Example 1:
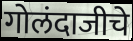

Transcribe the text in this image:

गोलंदाजीचे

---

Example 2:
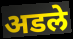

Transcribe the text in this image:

अडले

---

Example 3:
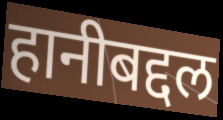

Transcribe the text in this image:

हानीबद्दल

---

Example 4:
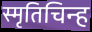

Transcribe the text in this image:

स्मृतिचिन्ह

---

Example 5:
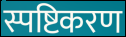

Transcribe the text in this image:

स्पष्टिकरण